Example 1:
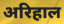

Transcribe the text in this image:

अरिहाल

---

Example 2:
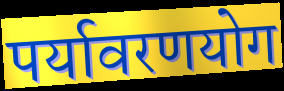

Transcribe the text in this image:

पर्यावरणयोग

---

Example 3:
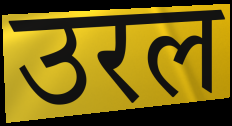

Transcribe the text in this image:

उरल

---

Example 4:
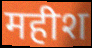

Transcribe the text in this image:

महीश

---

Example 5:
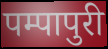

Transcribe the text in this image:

पम्पापुरी